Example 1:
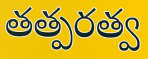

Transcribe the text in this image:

తత్పరత్వ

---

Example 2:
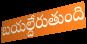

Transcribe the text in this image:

బయల్దేరుతుంది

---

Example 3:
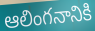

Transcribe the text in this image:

ఆలింగనానికి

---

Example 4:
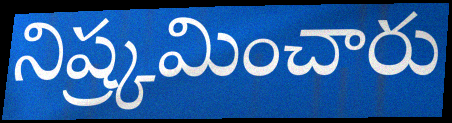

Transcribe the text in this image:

నిష్ర్కమించారు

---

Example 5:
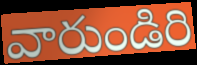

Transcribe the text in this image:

వారుండిరి